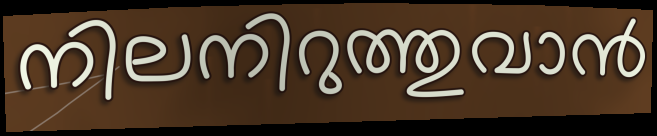
നിലനിറുത്തുവാൻ